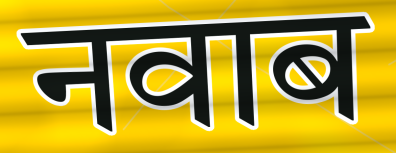
नवाब